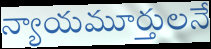
న్యాయమూర్తులనే